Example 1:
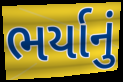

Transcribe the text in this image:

ભર્યાનું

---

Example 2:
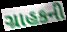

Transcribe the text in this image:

ગ્રાહકની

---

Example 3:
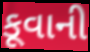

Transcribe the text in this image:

કૂવાની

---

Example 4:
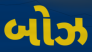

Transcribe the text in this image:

બોઝ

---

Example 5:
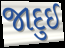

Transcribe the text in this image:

જાદુઈ